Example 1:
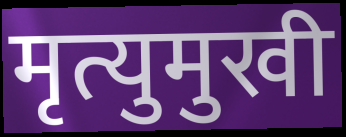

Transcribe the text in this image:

मृत्युमुखी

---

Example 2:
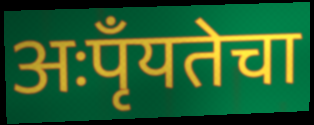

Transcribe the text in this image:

अःपृँयतेचा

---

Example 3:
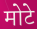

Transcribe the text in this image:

मोटे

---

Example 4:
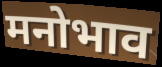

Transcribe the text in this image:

मनोभाव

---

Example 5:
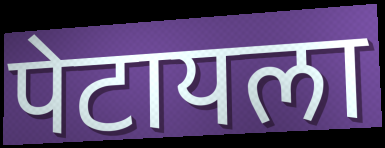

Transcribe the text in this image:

पेटायला